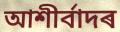
আশীৰ্বাদৰ